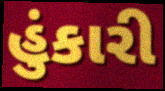
હુંકારી